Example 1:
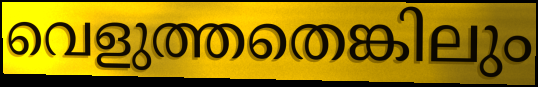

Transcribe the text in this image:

വെളുത്തതെങ്കിലും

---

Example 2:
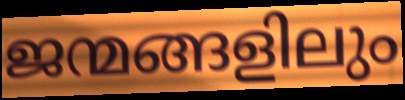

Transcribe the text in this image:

ജന്മങ്ങളിലും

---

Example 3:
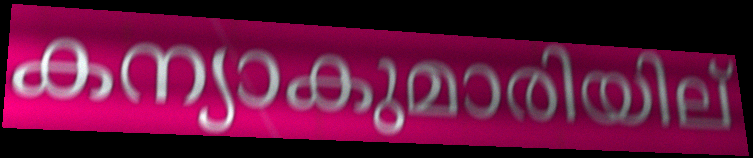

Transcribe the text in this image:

കന്യാകുമാരിയില്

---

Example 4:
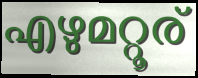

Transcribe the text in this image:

എഴുമറ്റൂര്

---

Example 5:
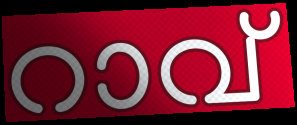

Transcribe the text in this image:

റാവ്